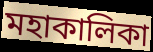
মহাকালিকা